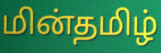
மின்தமிழ்